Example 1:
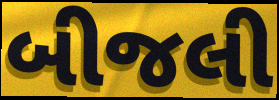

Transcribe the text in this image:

બીજલી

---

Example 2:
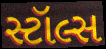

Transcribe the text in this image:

સ્ટૉલ્સ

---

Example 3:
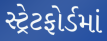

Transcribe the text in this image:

સ્ટ્રેટફોર્ડમાં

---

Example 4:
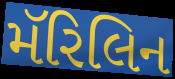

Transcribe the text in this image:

મૅરિલિન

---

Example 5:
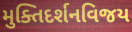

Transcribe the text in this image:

મુક્તિદર્શનવિજય